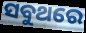
ସବୁଥରେ